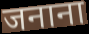
जनाना